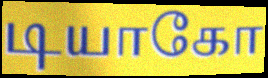
டியாகோ